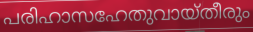
പരിഹാസഹേതുവായ്തീരും